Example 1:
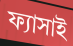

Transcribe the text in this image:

ফ্যাসাই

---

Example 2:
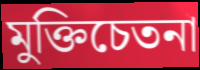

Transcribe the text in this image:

মুক্তিচেতনা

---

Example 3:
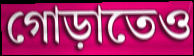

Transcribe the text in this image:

গোড়াতেও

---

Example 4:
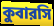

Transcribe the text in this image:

কুবারসি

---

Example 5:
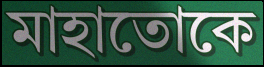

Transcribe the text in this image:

মাহাতোকে